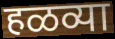
हळव्या